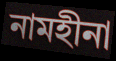
নামহীনা